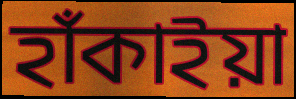
হাঁকাইয়া